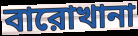
বারোখানা